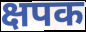
क्षपक